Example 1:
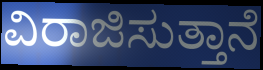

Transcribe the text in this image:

ವಿರಾಜಿಸುತ್ತಾನೆ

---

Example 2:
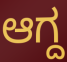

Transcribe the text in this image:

ಆಗ್ದ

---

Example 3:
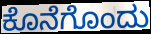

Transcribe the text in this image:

ಕೊನೆಗೊಂದು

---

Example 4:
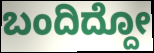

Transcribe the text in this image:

ಬಂದಿದ್ದೋ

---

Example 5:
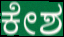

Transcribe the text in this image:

ಕೇಶ